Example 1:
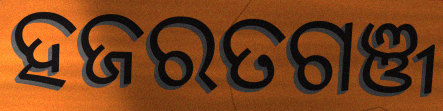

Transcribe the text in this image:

ହଜରତଗଞ୍ଜ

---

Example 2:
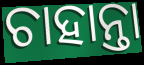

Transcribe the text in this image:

ଚାହାନ୍ତା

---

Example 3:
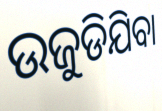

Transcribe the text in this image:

ଉଜୁଡିଯିବା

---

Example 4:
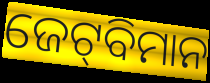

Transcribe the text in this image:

ଜେଟ୍‍ବିମାନ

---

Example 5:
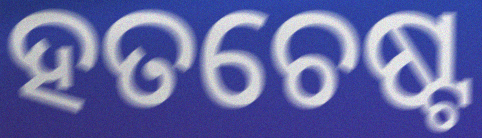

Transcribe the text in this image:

ହତଚେଷ୍ଟ